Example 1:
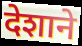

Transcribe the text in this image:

देशाने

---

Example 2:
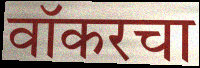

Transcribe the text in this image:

वॉकरचा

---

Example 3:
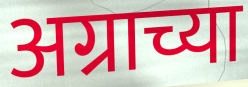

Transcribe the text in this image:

अग्राच्या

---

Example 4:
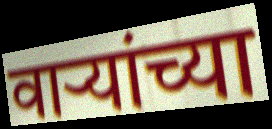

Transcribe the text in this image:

वाऱ्यांच्या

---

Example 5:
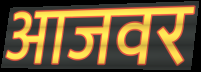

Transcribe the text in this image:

आजवर